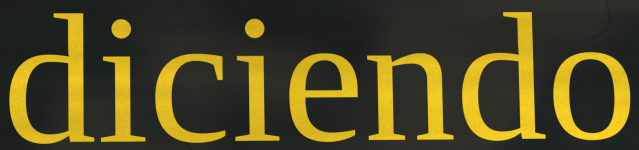
diciendo